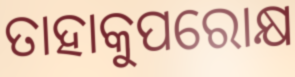
ତାହାକୁପରୋକ୍ଷ